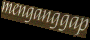
menganggap